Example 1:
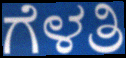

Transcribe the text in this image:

ಗೆಳತಿ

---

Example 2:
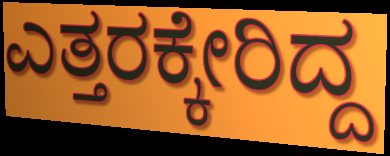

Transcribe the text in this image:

ಎತ್ತರಕ್ಕೇರಿದ್ದ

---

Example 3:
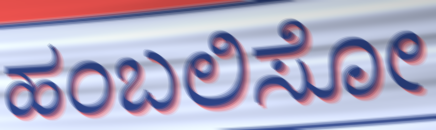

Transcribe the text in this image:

ಹಂಬಲಿಸೋ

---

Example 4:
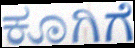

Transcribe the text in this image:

ಕೂಗಿಗೆ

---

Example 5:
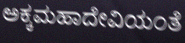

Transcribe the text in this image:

ಅಕ್ಕಮಹಾದೇವಿಯಂತೆ